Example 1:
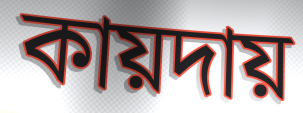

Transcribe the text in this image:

কায়দায়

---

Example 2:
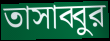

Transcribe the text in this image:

তাসাব্বুর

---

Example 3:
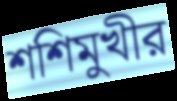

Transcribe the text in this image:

শশিমুখীর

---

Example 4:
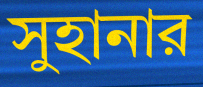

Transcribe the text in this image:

সুহানার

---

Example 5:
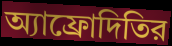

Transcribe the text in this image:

অ্যাফ্রোদিতির